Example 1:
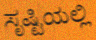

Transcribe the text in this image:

ಸೃಷ್ಟಿಯಲ್ಲಿ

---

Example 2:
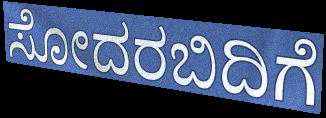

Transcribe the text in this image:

ಸೋದರಬಿದಿಗೆ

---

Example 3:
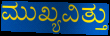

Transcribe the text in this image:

ಮುಖ್ಯವಿತ್ತು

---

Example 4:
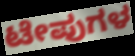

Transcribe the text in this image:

ಟೇಪುಗಳ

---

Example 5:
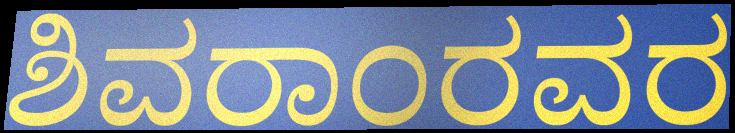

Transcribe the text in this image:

ಶಿವರಾಂರವರ